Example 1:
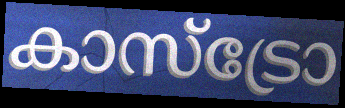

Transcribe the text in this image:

കാസ്ട്രോ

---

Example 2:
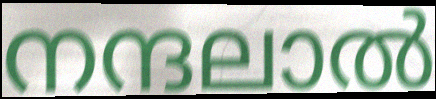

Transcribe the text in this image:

നന്ദലാൽ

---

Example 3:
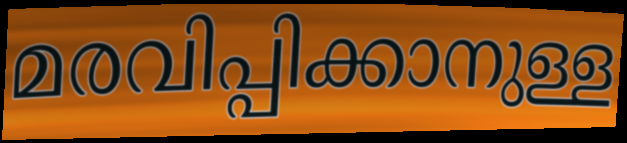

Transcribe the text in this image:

മരവിപ്പിക്കാനുള്ള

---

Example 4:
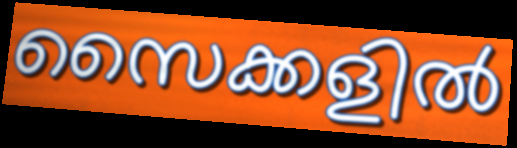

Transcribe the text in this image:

സൈക്കളിൽ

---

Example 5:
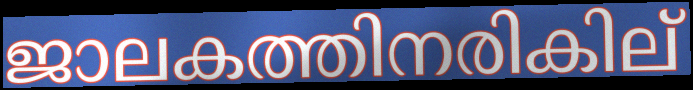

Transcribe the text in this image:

ജാലകത്തിനരികില്